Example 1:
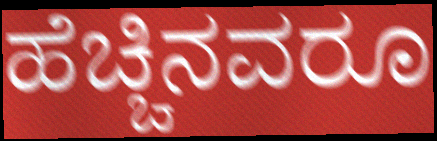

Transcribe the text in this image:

ಹೆಚ್ಚಿನವರೂ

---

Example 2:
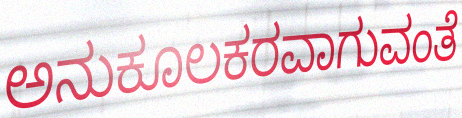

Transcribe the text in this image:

ಅನುಕೂಲಕರವಾಗುವಂತೆ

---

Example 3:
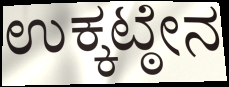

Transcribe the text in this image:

ಉಕ್ಕಟ್ಠೇನ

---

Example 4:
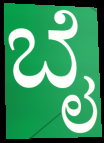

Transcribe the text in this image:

ಬೈ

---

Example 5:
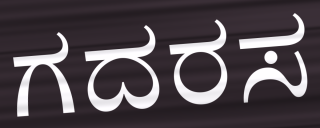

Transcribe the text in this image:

ಗದರಸ